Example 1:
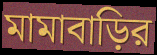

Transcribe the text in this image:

মামাবাড়ির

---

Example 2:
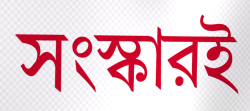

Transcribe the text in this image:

সংস্কারই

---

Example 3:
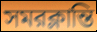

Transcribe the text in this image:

সমরক্লান্তি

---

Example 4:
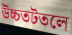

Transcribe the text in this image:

উচ্চতটতলে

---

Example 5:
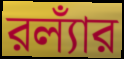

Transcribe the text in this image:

রল্যাঁর